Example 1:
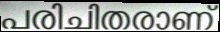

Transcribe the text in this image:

പരിചിതരാണ്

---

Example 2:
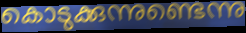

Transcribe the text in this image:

കൊടുക്കുന്നുണ്ടെന്നു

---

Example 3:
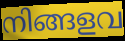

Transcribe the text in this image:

നിങ്ങളവ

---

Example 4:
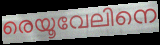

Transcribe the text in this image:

രെയൂവേലിനെ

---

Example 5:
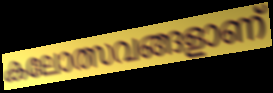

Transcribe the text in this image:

കലോത്സവങ്ങളാണ്